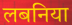
लबनिया